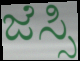
ಜೆಸ್ಸಿ